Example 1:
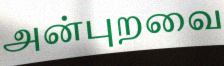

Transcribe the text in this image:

அன்புறவை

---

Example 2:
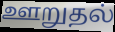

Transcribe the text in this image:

ஊறுதல்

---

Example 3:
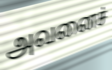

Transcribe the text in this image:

அவனைச்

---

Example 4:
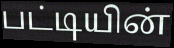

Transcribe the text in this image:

பட்டியின்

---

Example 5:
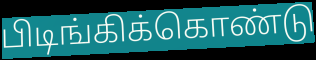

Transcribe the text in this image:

பிடிங்கிக்கொண்டு